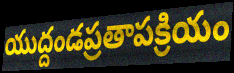
యుద్దండప్రతాపక్రియం